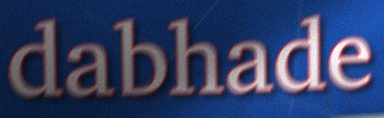
dabhade